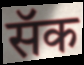
सॅक